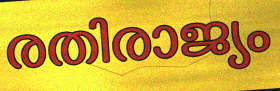
രതിരാജ്യം